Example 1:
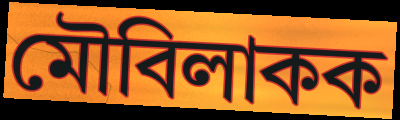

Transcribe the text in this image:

মৌবিলাকক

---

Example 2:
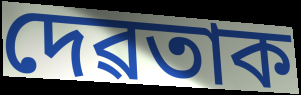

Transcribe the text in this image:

দেৱতাক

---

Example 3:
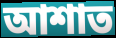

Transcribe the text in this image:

আশাত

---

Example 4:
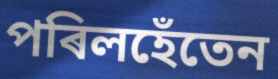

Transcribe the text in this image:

পৰিলহেঁতেন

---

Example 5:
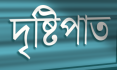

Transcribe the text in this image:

দৃষ্টিপাত